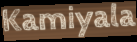
Kamiyala